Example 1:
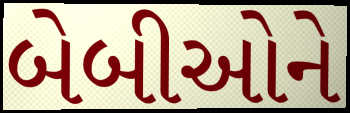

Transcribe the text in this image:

બેબીઓને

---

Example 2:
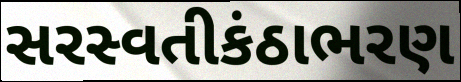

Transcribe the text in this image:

સરસ્વતીકંઠાભરણ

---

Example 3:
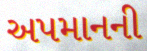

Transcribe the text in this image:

અપમાનની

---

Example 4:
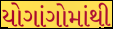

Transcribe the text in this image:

યોગાંગોમાંથી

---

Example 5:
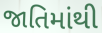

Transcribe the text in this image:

જાતિમાંથી